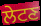
ਲੇਟਣ